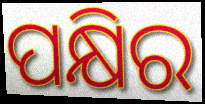
ପକ୍ଷିର